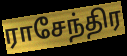
ராசேந்திர